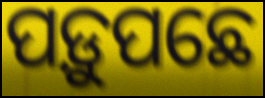
ପଡ଼ୁପଛେ